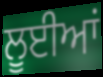
ਲੂਈਆਂ